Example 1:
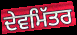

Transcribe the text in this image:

ਦੇਵਮਿੱਤਰ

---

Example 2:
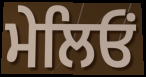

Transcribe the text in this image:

ਮੇਲਿਓਂ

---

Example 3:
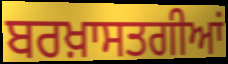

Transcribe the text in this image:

ਬਰਖ਼ਾਸਤਗੀਆਂ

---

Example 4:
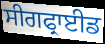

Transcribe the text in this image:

ਸੀਗਫ੍ਰਾਈਡ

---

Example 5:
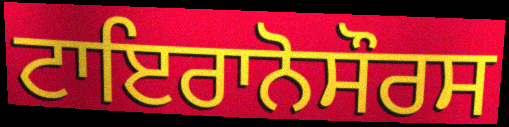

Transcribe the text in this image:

ਟਾਇਰਾਨੋਸੌਰਸ